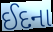
ઈદના